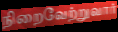
நிறைவேற்றுவார்